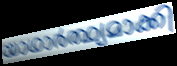
യാഥാർത്ഥ്യമാക്കി